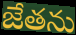
జేతను